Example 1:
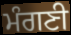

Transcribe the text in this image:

ਮੰਗਣੀ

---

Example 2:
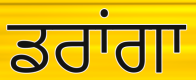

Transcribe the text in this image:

ਡਰਾਂਗਾ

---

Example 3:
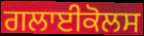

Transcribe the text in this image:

ਗਲਾਈਕੋਲਸ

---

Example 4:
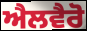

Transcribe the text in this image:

ਐਲਵੈਰੋ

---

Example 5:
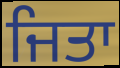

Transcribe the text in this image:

ਜਿਤਾ